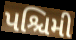
પશ્ચિમી